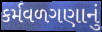
કર્મવળગણાનું